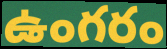
ఉంగరం